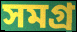
সমগ্ৰ